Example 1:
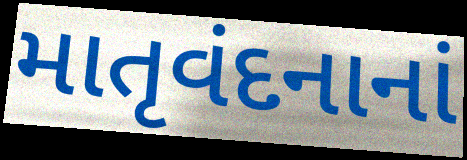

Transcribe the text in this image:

માતૃવંદનાનાં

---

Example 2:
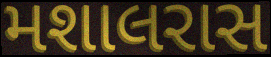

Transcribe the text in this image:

મશાલરાસ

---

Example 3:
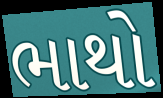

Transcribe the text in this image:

ભાથો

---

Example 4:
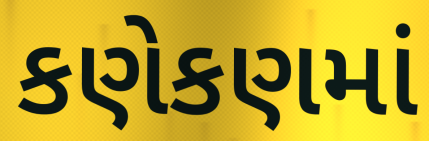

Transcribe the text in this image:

કણેકણમાં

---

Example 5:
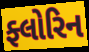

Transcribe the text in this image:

ફ્લોરિન